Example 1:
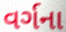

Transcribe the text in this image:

વર્ગના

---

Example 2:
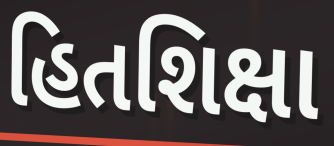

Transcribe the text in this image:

હિતશિક્ષા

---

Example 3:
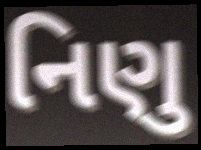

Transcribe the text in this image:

નિણુ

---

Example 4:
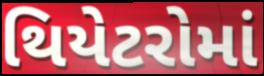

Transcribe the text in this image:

થિયેટરોમાં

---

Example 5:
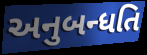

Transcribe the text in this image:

અનુબન્ધતિ